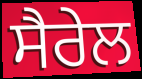
ਸੈਰੇਲ